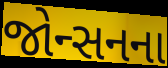
જોન્સનના